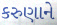
કરુણાને